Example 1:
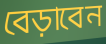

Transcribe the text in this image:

বেড়াবেন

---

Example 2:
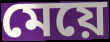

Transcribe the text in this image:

মেয়ে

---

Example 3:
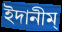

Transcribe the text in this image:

ইদানীম্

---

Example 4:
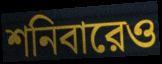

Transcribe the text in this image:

শনিবারেও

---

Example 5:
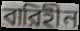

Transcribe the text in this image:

বারিহীন